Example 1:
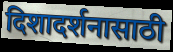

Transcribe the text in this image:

दिशादर्शनासाठी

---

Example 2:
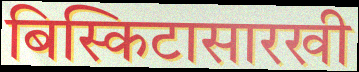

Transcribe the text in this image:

बिस्किटासारखी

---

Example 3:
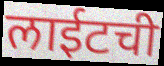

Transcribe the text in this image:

लाईटची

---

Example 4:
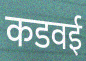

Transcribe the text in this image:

कडवई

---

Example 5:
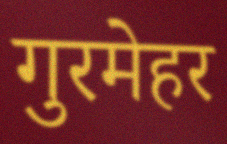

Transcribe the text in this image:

गुरमेहर